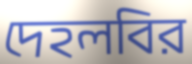
দেহলবির